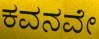
ಕವನವೇ